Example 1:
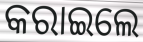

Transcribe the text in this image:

କରାଇଲେ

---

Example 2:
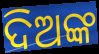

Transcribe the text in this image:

ଦିଅଙ୍କ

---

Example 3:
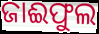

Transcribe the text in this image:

ଜାଈଫୁଲ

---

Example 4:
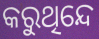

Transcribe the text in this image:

କରୁଥିନ୍ଦେ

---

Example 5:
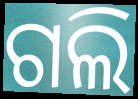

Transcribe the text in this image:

ଗଲି